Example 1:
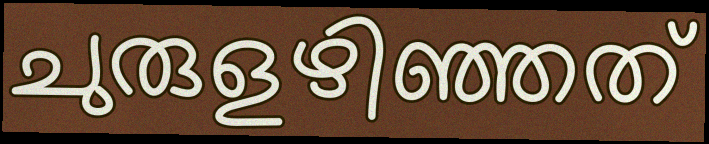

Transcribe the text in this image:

ചുരുളഴിഞ്ഞത്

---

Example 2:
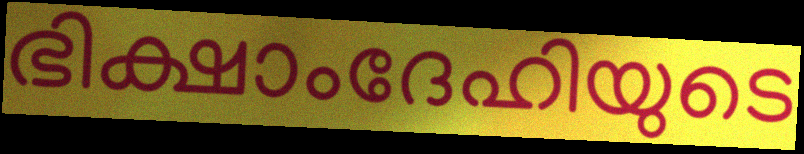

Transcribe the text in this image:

ഭിക്ഷാംദേഹിയുടെ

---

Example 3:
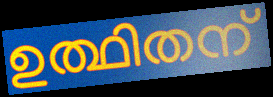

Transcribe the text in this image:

ഉത്ഥിതന്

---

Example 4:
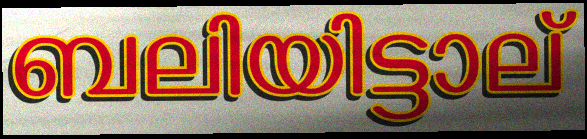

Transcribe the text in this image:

ബലിയിട്ടാല്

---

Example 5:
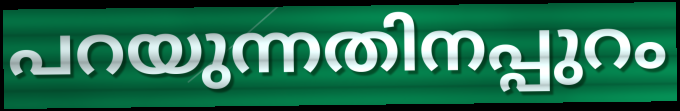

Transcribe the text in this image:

പറയുന്നതിനപ്പുറം